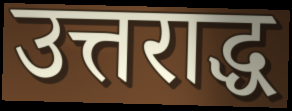
उत्तराद्ध